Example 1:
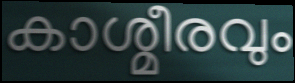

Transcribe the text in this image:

കാശ്മീരവും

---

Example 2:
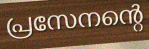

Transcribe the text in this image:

പ്രസേനന്റെ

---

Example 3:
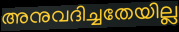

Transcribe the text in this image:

അനുവദിച്ചതേയില്ല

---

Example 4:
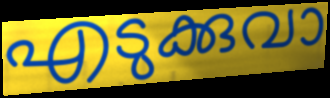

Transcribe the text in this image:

എടുക്കുവാ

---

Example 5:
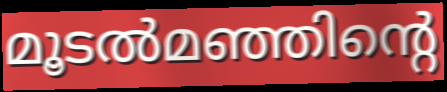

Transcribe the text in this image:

മൂടൽമഞ്ഞിന്റെ